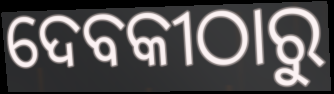
ଦେବକୀଠାରୁ